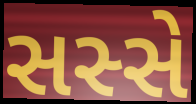
સસ્સે